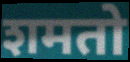
शमतो